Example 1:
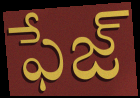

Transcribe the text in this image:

ఫేజ్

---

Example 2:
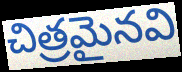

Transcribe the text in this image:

చిత్రమైనవి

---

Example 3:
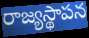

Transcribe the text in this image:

రాజ్యస్థాపన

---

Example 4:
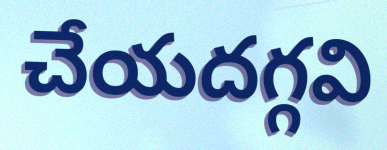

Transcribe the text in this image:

చేయదగ్గవి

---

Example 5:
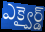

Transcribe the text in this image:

ఎక్వైర్డ్